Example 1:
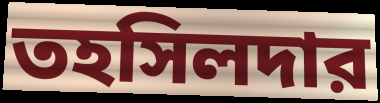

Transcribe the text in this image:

তহসিলদার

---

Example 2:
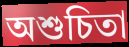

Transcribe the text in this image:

অশুচিতা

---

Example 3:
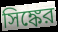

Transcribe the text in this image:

সিঙ্কের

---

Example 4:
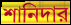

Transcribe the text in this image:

শানিদার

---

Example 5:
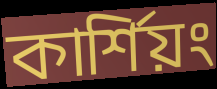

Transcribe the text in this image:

কার্শিয়ং